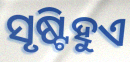
ସୃଷ୍ଟିହୁଏ